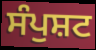
ਸੰਪੁਸ਼ਟ